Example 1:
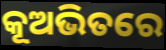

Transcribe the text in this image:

କୂଅଭିତରେ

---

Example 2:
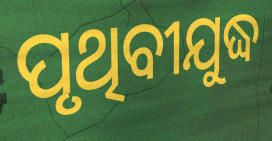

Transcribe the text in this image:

ପୃଥିବୀଯୁଦ୍ଧ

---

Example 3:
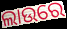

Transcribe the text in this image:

ଲାଉରେ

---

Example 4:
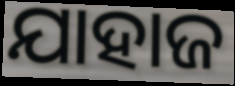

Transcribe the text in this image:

ଯାହାଜ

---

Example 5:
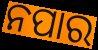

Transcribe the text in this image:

ନପାର